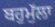
ਬਹੁਮੁੱਲਾ